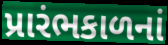
પ્રારંભકાળનાં